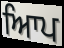
ਆਿਪ